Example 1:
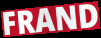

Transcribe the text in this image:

FRAND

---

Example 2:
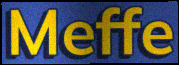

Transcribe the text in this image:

Meffe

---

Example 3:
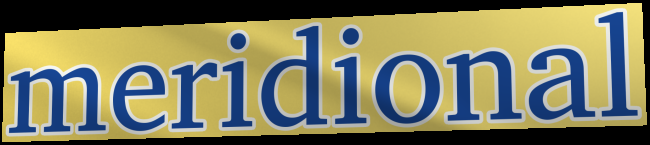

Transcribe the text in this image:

meridional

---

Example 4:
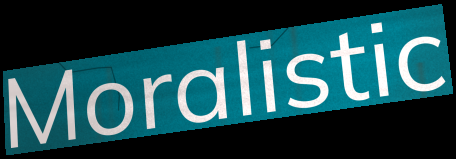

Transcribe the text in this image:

Moralistic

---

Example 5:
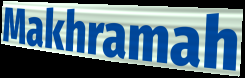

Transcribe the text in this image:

Makhramah